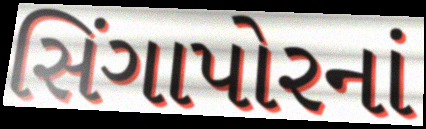
સિંગાપોરનાં